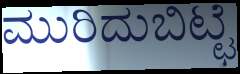
ಮುರಿದುಬಿಟ್ಟೆ